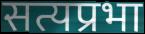
सत्यप्रभा